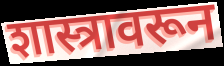
शास्त्रावरून